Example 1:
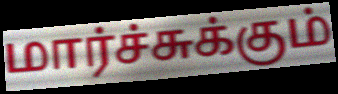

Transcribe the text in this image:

மார்ச்சுக்கும்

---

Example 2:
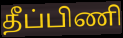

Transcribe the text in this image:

தீப்பிணி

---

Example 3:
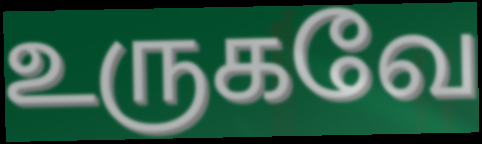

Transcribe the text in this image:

உருகவே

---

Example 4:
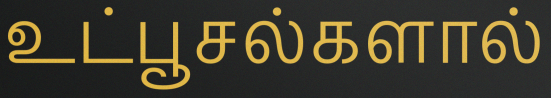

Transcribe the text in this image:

உட்பூசல்களால்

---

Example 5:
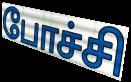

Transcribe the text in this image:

போச்சி